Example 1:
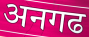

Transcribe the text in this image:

अनगढ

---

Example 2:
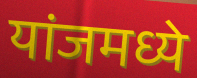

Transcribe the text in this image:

यांजमध्ये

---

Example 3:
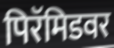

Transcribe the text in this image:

पिरॅमिडवर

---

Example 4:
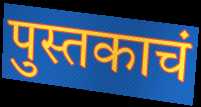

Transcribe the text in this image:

पुस्तकाचं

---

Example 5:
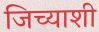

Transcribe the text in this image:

जिच्याशी